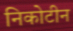
निकोटीन